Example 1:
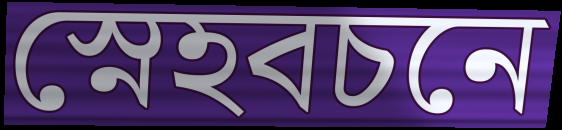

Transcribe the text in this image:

স্নেহবচনে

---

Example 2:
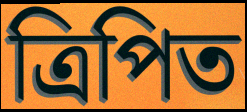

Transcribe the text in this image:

ত্রিপিত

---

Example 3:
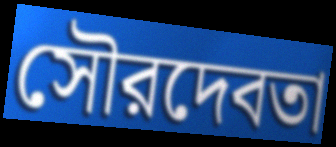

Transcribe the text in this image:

সৌরদেবতা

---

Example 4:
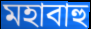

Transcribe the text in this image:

মহাবাহু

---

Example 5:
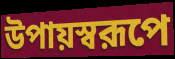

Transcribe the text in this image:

উপায়স্বরূপে